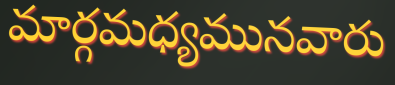
మార్గమధ్యమునవారు